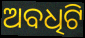
ଅବଧିଟି